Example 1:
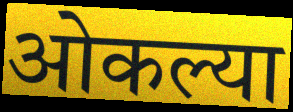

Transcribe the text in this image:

ओकल्या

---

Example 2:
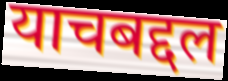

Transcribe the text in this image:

याचबद्दल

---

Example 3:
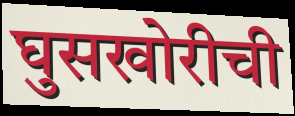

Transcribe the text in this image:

घुसखोरीची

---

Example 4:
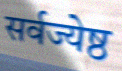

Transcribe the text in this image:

सर्वज्येष्ठ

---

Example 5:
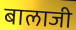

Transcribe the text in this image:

बालाजी